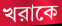
খরাকে